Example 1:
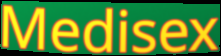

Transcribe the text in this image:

Medisex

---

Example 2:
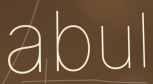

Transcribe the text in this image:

abul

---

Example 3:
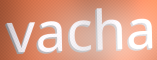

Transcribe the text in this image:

vacha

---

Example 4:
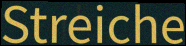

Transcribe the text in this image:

Streiche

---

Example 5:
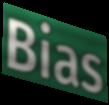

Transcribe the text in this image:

Bias